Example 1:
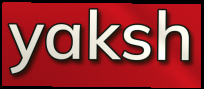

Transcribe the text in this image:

yaksh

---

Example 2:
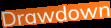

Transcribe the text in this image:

Drawdown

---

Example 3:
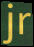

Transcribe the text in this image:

jr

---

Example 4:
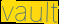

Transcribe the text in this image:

vault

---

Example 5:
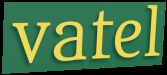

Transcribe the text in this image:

vatel